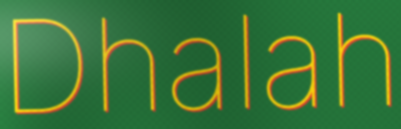
Dhalah